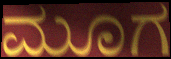
ಮೂಗ